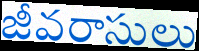
జీవరాసులు